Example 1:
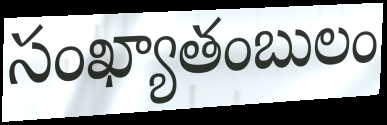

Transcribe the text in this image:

సంఖ్యాతంబులం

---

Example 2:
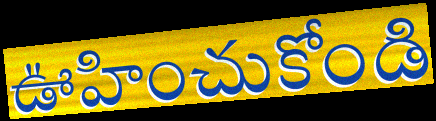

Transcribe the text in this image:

ఊహించుకోండి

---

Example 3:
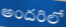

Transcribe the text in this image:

అందరిలో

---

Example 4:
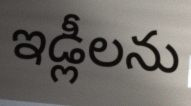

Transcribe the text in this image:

ఇడ్లీలను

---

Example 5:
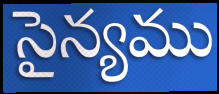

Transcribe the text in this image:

సైన్యము